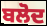
ਬਲੋਦ